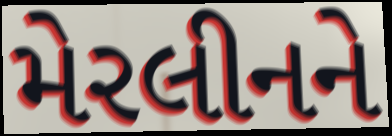
મેરલીનને